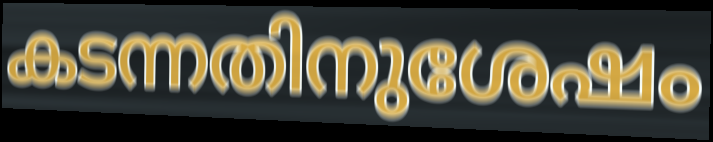
കടന്നതിനുശേഷം